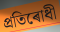
প্ৰতিৰোধী